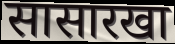
सासारखा